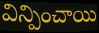
విన్పించాయి